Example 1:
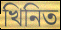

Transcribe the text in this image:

খিনিত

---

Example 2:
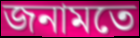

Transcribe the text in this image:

জনামতে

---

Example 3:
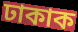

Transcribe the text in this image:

ঢাকাক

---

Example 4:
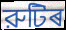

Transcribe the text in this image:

ৰুটিৰ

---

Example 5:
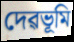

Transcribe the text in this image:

দেৱভূমি